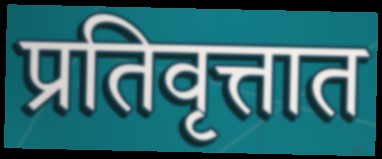
प्रतिवृत्तात